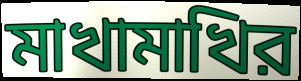
মাখামাখির